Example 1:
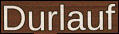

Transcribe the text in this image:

Durlauf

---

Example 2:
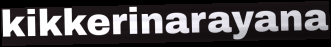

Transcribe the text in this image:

kikkerinarayana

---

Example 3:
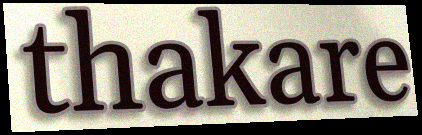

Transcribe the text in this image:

thakare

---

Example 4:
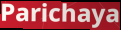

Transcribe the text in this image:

Parichaya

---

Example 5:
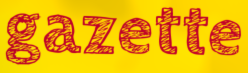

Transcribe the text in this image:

gazette